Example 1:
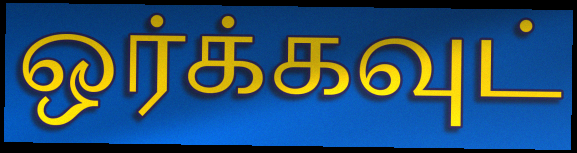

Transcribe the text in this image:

ஒர்க்கவுட்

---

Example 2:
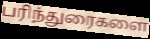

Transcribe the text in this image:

பரிந்துரைகளை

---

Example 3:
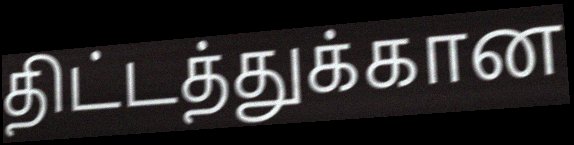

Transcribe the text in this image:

திட்டத்துக்கான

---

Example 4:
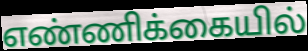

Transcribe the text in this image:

எண்ணிக்கையில்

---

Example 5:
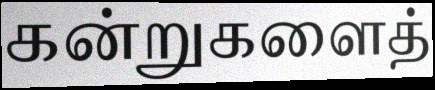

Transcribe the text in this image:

கன்றுகளைத்